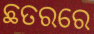
ଛତରରେ